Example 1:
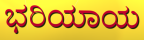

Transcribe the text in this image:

ಭರಿಯಾಯ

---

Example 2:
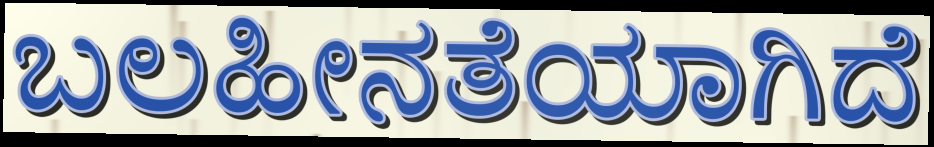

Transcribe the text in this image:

ಬಲಹೀನತೆಯಾಗಿದೆ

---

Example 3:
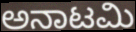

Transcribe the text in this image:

ಅನಾಟಮಿ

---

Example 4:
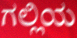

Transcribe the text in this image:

ಗಲ್ಲಿಯ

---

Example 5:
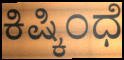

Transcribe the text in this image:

ಕಿಷ್ಕಿಂಧೆ